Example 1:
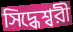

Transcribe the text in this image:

সিদ্ধেশ্বরী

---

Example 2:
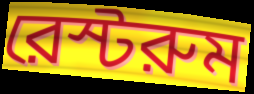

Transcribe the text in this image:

রেস্টরুম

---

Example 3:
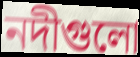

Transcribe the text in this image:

নদীগুলো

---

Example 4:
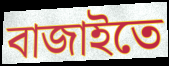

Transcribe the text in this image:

বাজাইতে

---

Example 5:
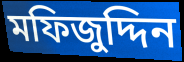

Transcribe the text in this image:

মফিজুদ্দিন